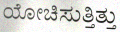
ಯೋಚಿಸುತ್ತಿತ್ತು